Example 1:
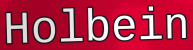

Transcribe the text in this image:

Holbein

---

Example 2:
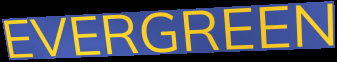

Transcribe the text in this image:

EVERGREEN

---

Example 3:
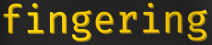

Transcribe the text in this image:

fingering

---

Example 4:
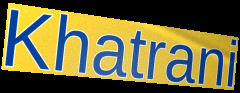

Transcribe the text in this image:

Khatrani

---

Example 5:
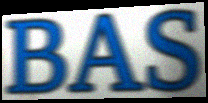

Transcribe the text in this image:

BAS